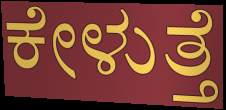
ಕೇಳುತ್ತೆ